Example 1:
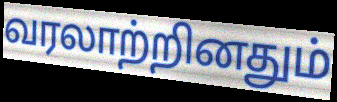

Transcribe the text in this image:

வரலாற்றினதும்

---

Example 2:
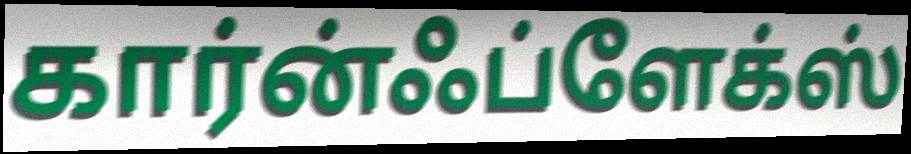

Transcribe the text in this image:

கார்ன்ஃப்ளேக்ஸ்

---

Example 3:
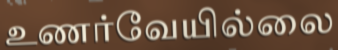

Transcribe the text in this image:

உணர்வேயில்லை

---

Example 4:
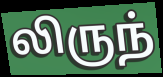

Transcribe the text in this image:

லிருந்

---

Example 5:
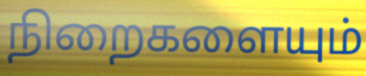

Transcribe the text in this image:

நிறைகளையும்